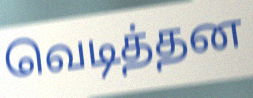
வெடித்தன